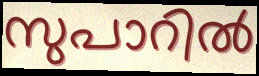
സുപാറിൽ